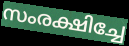
സംരക്ഷിച്ചേ